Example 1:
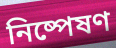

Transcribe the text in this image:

নিষ্পেষণ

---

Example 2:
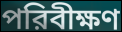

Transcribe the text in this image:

পরিবীক্ষণ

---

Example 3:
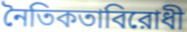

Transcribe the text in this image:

নৈতিকতাবিরোধী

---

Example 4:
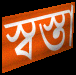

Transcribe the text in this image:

স্বস্তা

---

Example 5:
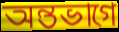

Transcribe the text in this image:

অন্তভাগে